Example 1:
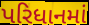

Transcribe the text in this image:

પરિધાનમાં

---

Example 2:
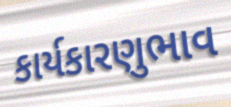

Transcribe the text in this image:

કાર્યકારણુભાવ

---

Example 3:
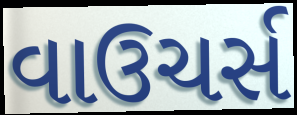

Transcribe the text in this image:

વાઉચર્સ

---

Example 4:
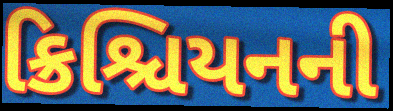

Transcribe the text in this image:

ક્રિશ્ચિયનની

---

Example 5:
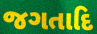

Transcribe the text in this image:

જગતાદિ